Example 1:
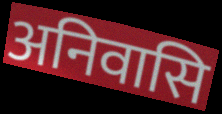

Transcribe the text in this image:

अनिवासि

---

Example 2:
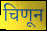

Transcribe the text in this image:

चिणून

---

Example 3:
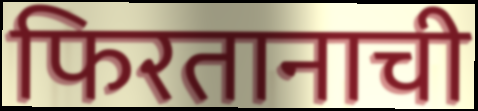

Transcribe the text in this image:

फिरतानाची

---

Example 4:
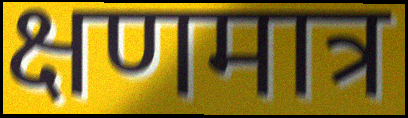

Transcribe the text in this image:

क्षणमात्र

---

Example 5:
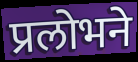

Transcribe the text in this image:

प्रलोभने